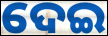
ଦେଇ